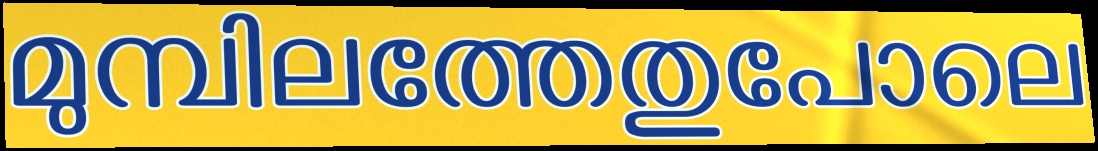
മുമ്പിലത്തേതുപോലെ